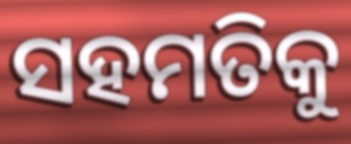
ସହମତିକୁ